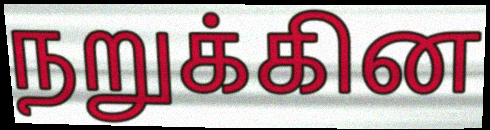
நறுக்கின